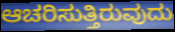
ಆಚರಿಸುತ್ತಿರುವುದು